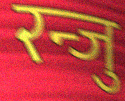
रन्जु